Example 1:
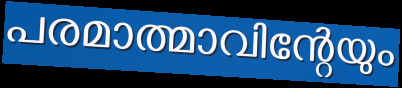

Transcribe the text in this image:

പരമാത്മാവിന്റേയും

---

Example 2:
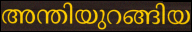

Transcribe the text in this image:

അന്തിയുറങ്ങിയ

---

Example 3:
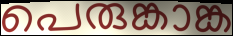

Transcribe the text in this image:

പെരുങ്കാങ്ക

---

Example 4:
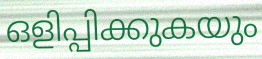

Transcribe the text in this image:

ഒളിപ്പിക്കുകയും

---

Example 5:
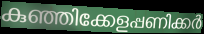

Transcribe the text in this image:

കുഞ്ഞിക്കേളപ്പണിക്കർ